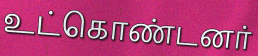
உட்கொண்டனர்